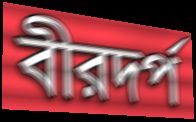
বীরদর্প